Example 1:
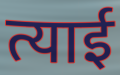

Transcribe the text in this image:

त्याई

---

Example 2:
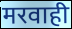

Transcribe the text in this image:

मरवाही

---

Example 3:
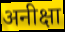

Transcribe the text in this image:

अनीक्षा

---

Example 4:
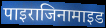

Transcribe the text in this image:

पाइराजिनामाइड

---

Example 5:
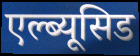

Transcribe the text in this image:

एल्ब्यूसिड